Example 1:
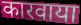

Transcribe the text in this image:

कारवाया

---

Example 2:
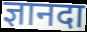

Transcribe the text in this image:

ज्ञानदा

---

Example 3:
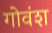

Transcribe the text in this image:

गोवंश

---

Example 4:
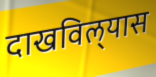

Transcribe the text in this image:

दाखविल्यास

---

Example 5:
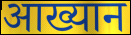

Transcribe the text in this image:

आख्यान